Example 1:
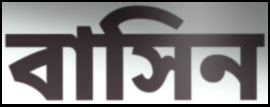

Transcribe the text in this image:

বাসিন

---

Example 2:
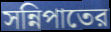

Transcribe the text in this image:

সন্নিপাতের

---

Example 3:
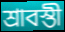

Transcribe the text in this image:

শ্রাবস্তী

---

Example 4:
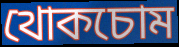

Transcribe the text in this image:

থোকচোম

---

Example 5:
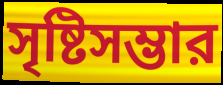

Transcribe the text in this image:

সৃষ্টিসম্ভার